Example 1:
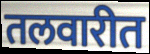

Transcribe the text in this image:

तलवारीत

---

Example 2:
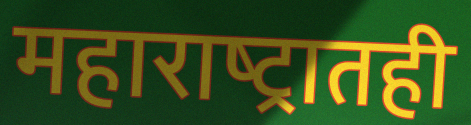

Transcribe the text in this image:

महाराष्ट्रातही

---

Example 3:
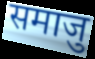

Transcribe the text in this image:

समाजु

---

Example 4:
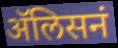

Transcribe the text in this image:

ॲलिसनं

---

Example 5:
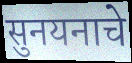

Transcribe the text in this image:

सुनयनाचे